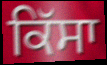
ਕਿੱਸਾ